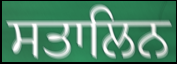
ਸਤਾਲਿਨ